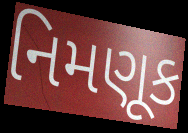
નિમણૂક